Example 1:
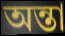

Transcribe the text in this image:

অন্তা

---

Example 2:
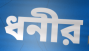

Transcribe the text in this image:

ধনীর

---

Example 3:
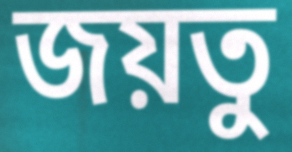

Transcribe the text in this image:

জয়তু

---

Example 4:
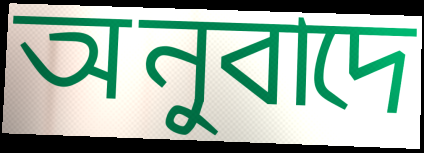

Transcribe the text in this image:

অনুবাদে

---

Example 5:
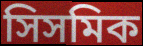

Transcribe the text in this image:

সিসমিক